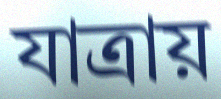
যাত্রায়